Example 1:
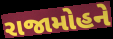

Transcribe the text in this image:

રાજામોહને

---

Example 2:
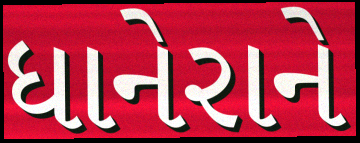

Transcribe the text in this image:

ધાનેરાને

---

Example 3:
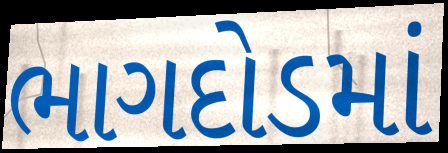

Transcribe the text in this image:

ભાગદોડમાં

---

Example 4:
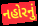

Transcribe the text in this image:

નહોરનું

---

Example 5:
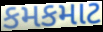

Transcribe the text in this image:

કમકમાટ